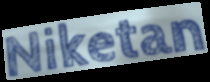
Niketan